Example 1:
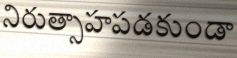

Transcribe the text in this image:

నిరుత్సాహపడకుండా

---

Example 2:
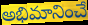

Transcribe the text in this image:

అభిమానించే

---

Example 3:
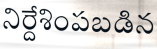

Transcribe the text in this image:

నిర్దేశింపబడిన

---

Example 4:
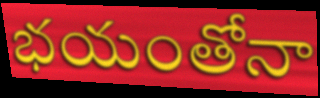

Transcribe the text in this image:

భయంతోనా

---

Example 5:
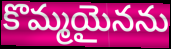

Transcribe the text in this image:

కొమ్మయైనను